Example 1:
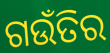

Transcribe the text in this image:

ଗଉଁତିର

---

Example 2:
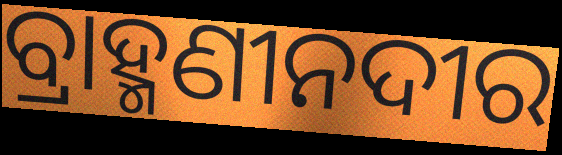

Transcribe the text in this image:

ବ୍ରାହ୍ମଣୀନଦୀର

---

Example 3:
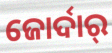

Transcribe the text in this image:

ଜୋର୍ଦାର୍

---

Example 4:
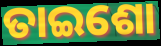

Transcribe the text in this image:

ତାଇଶୋ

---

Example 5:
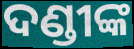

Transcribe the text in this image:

ଦଣ୍ଡୀଙ୍କ